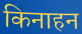
किनाहन